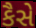
કૈસે